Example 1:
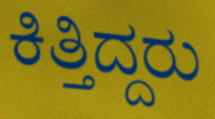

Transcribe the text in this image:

ಕಿತ್ತಿದ್ದರು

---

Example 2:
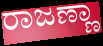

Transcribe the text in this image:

ರಾಜಣ್ಣಾ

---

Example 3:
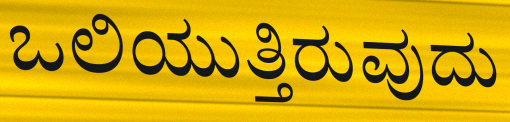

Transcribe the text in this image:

ಒಲಿಯುತ್ತಿರುವುದು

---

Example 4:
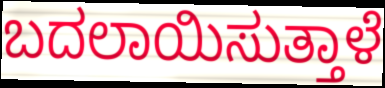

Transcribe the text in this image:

ಬದಲಾಯಿಸುತ್ತಾಳೆ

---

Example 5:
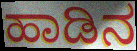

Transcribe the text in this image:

ಹಾಡಿನ